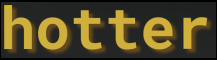
hotter